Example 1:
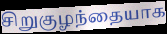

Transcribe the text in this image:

சிறுகுழந்தையாக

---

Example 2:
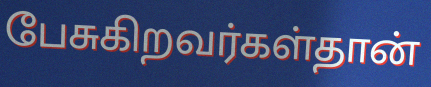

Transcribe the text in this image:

பேசுகிறவர்கள்தான்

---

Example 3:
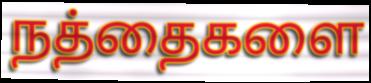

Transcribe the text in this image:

நத்தைகளை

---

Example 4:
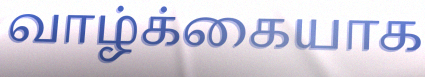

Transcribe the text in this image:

வாழ்க்கையாக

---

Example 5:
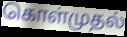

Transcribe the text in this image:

கொள்முதல்